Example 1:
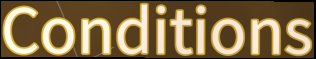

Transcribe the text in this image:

Conditions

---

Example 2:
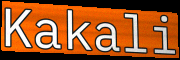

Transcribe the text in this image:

Kakali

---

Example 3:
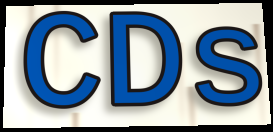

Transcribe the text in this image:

CDs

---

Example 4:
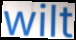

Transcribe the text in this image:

wilt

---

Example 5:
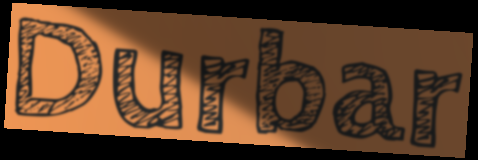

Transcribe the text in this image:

Durbar